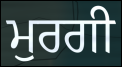
ਮੁਰਗੀ